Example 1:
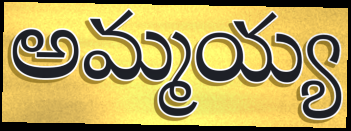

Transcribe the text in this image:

అమ్మయ్య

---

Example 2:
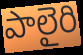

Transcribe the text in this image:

పాలైరి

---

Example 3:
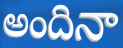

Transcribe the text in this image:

అందినా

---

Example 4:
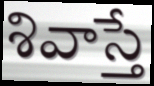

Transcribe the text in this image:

శివాస్తే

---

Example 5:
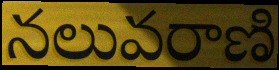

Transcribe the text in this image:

నలువరాణి